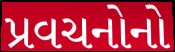
પ્રવચનોનો